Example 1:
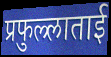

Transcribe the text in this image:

प्रफुल्लाताई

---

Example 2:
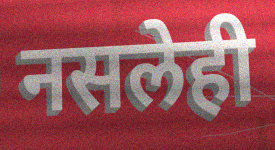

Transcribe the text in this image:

नसलेही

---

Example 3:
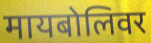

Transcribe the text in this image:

मायबोलिवर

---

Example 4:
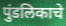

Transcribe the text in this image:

पुंडलिकाचे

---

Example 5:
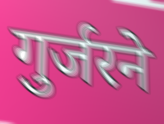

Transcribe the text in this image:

गुर्जरने